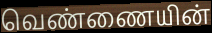
வெண்ணையின்